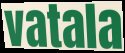
vatala